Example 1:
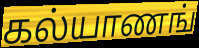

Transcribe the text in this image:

கல்யாணங்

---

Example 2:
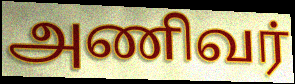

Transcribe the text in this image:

அணிவர்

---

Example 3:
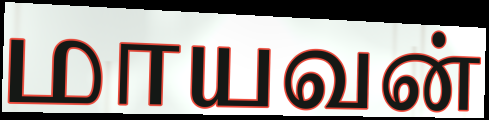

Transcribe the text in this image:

மாயவன்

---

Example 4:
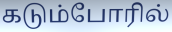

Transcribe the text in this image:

கடும்போரில்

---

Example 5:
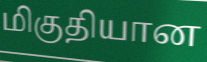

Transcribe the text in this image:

மிகுதியான